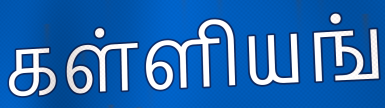
கள்ளியங்